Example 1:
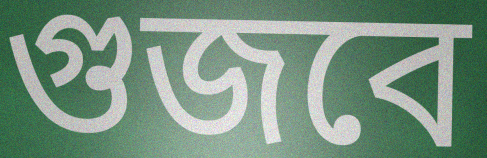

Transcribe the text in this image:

গুজবে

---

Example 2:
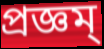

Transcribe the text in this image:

প্রজ্ঞম্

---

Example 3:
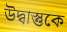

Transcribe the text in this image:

উদ্বাস্তুকে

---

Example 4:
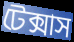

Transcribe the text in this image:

টেক্সাস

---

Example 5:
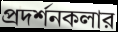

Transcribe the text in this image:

প্রদর্শনকলার